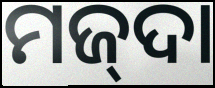
ମଜ୍‌ଦା